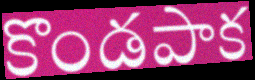
కొండపాక